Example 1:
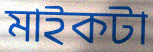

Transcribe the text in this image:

মাইকটা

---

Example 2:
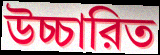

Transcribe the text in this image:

উচ্চারিত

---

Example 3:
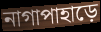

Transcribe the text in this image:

নাগাপাহাড়ে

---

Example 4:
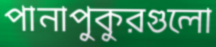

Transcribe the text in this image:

পানাপুকুরগুলো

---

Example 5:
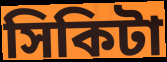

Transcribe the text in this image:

সিকিটা